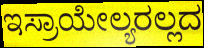
ಇಸ್ರಾಯೇಲ್ಯರಲ್ಲದ